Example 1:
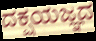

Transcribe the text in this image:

ದಕ್ಷಯಜ್ಞದ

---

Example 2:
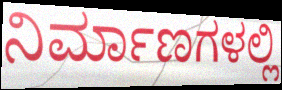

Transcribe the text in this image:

ನಿರ್ಮಾಣಗಳಲ್ಲಿ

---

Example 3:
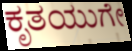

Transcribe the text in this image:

ಕೃತಯುಗೇ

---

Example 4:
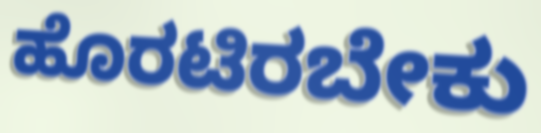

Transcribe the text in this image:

ಹೊರಟಿರಬೇಕು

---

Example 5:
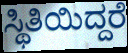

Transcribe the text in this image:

ಸ್ಥಿತಿಯಿದ್ದರೆ